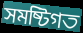
সমষ্টিগত